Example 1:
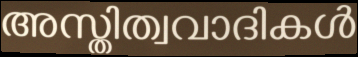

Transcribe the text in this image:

അസ്തിത്വവാദികൾ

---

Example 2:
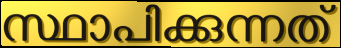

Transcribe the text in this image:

സ്ഥാപിക്കുന്നത്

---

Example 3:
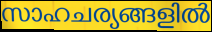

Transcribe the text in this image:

സാഹചര്യങ്ങളിൽ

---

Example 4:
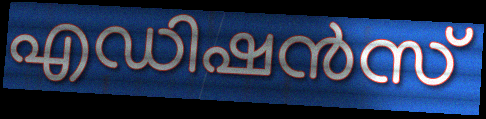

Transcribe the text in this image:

എഡിഷൻസ്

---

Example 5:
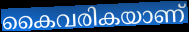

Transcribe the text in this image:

കൈവരികയാണ്